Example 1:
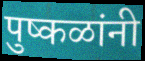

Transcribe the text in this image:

पुष्कळांनी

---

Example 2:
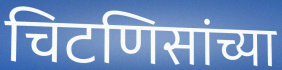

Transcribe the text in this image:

चिटणिसांच्या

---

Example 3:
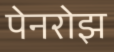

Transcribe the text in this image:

पेनरोझ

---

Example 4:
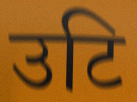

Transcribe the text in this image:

उटि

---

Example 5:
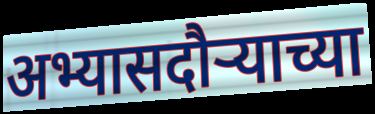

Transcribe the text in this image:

अभ्यासदौऱ्याच्या